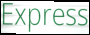
Express